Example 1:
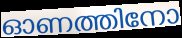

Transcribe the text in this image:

ഓണത്തിനോ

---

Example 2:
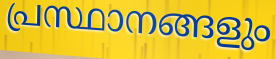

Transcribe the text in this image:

പ്രസ്ഥാനങ്ങളും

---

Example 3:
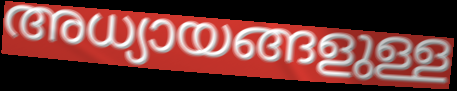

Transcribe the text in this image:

അധ്യായങ്ങളുള്ള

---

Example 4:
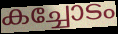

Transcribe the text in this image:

കച്ചോടം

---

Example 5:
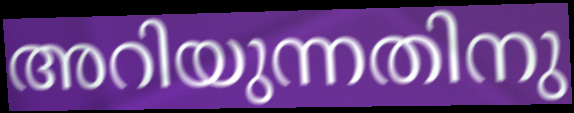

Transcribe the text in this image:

അറിയുന്നതിനു